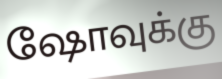
ஷோவுக்கு